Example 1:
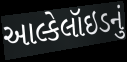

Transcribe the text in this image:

આલ્કેલૉઇડનું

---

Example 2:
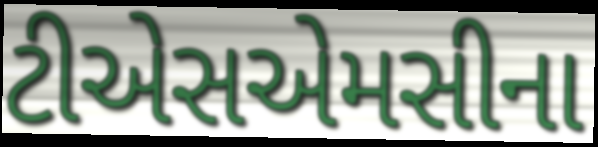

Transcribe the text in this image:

ટીએસએમસીના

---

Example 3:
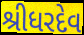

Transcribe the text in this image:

શ્રીધરદેવ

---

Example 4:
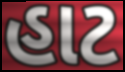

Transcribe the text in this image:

હાટ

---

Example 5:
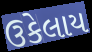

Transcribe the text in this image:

ઉકેલાય